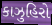
કાઝુહિરો